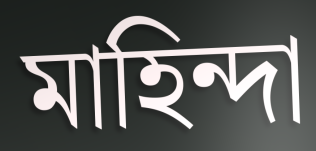
মাহিন্দা